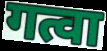
गत्वा